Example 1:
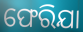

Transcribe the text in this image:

ଫେରିଯା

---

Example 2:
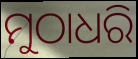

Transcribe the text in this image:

ମୁଠାଧରି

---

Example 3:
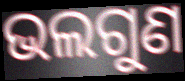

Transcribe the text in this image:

ଭଲଗୁଣ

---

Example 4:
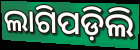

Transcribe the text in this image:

ଲାଗିପଡ଼ିଲି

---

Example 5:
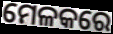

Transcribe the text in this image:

ମେଳକରେ